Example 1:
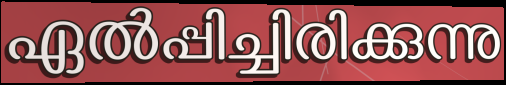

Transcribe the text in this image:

ഏൽപ്പിച്ചിരിക്കുന്നു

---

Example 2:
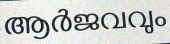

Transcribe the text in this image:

ആർജവവും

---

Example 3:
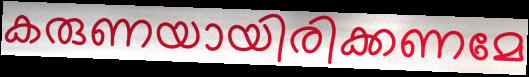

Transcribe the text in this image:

കരുണയായിരിക്കണമേ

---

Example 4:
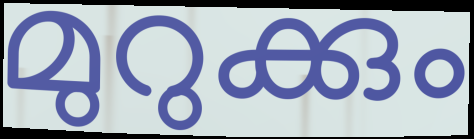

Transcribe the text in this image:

മുറുക്കും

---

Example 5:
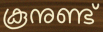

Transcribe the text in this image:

കൂനുണ്ട്